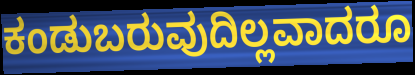
ಕಂಡುಬರುವುದಿಲ್ಲವಾದರೂ